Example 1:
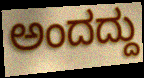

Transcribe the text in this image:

ಅಂದದ್ದು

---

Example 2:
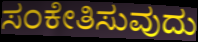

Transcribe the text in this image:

ಸಂಕೇತಿಸುವುದು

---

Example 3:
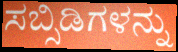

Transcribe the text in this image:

ಸಬ್ಸಿಡಿಗಳನ್ನು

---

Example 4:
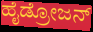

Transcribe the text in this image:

ಹೈಡ್ರೋಜನ್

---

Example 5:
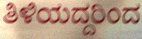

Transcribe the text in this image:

ತಿಳಿಯದ್ದರಿಂದ